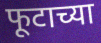
फूटाच्या